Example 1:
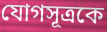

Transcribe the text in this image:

যোগসূত্রকে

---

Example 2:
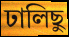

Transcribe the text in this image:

ঢালিছু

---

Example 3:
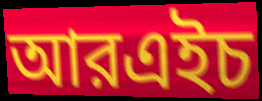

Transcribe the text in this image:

আরএইচ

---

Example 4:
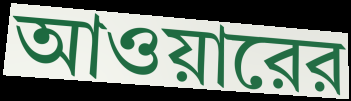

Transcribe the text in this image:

আওয়ারের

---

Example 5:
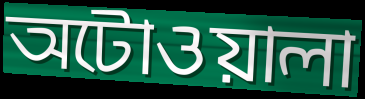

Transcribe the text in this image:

অটোওয়ালা